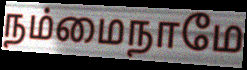
நம்மைநாமே